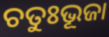
ଚତୁଃଭୂଜା